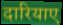
दारियाए